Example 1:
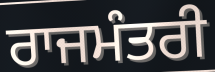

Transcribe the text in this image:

ਰਾਜਮੰਤਰੀ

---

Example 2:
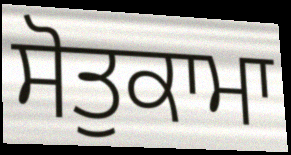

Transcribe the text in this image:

ਸੋਤੁਕਾਮਾ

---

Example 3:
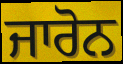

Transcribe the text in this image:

ਜਾਰੋਨ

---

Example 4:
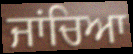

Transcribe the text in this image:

ਜਾਂਚਿਆ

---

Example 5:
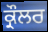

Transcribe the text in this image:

ਕ੍ਰੌਲਰ